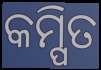
କମ୍ପିତ